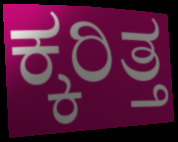
ಕ್ಕರಿತ್ತ